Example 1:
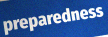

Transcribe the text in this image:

preparedness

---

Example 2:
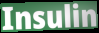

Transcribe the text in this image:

Insulin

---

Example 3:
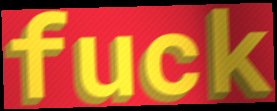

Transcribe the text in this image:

fuck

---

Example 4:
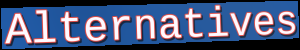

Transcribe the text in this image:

Alternatives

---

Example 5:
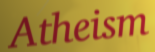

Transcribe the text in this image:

Atheism